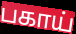
பகாய்